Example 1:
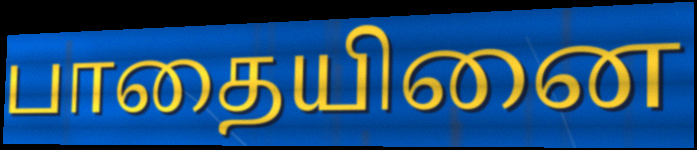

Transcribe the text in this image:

பாதையினை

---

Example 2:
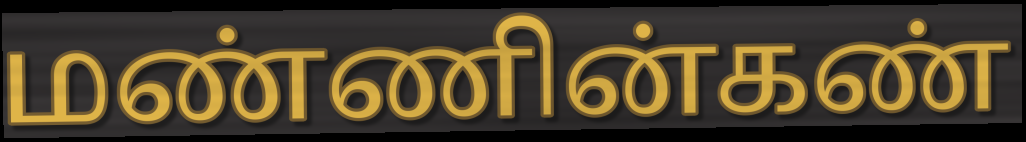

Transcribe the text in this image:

மண்ணின்கண்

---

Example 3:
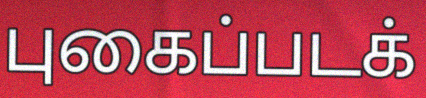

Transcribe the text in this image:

புகைப்படக்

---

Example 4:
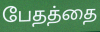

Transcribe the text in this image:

பேதத்தை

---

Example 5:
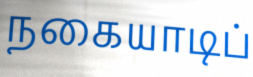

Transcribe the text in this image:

நகையாடிப்